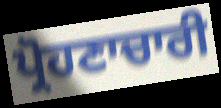
ਪ੍ਰੋਹਣਾਚਾਰੀ